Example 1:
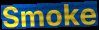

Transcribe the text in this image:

Smoke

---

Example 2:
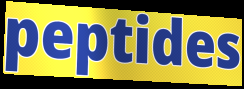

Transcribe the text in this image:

peptides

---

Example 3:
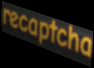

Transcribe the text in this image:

recaptcha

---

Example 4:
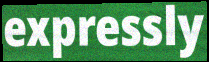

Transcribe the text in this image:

expressly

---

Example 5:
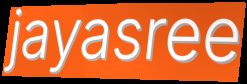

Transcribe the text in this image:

jayasree